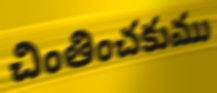
చింతించకుము